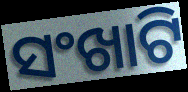
ସଂଖାଟି